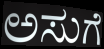
ಅಸುಗೆ